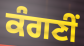
ਕੰਗਣੀਂ